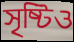
সৃষ্টিও